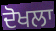
ਦੋਖਲਾ